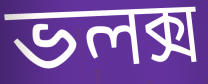
ভলক্স